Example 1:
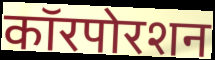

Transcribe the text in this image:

कॉरपोरशन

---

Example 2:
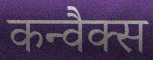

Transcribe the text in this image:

कन्वैक्स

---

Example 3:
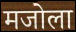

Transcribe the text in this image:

मजोला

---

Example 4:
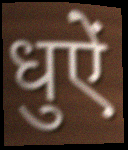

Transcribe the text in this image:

धुऐं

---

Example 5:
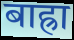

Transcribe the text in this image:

बाह्रा